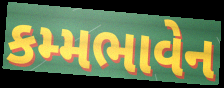
કમ્મભાવેન